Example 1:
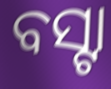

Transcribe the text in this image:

ବସ୍ଟା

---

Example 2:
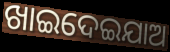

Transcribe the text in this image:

ଖାଇଦେଇଯାଅ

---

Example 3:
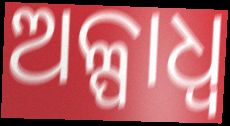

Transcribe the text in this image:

ଅଳ୍ପାଧ୍ଵ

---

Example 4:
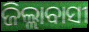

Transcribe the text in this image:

ଜିଲ୍ଲାବାସୀ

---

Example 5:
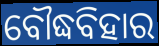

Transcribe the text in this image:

ବୌଦ୍ଧବିହାର